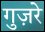
गुज़रे